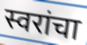
स्वरांचा